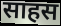
साहस